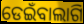
ଡେଇଁବାଲାଗି